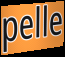
pelle